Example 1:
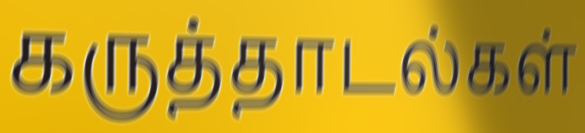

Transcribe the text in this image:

கருத்தாடல்கள்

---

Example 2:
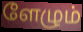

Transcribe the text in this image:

ளேழும்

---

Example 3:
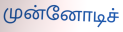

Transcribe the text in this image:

முன்னோடிச்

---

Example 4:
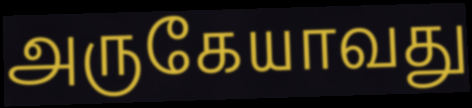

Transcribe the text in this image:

அருகேயாவது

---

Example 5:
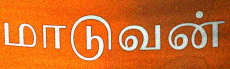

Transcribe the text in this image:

மாடுவன்